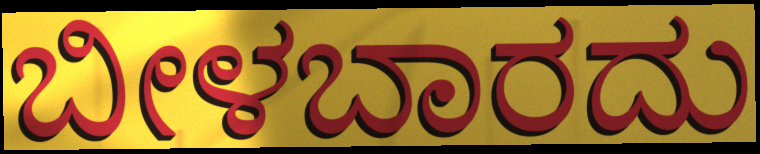
ಬೀಳಬಾರದು